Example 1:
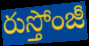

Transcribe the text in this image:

రుస్తోంజీ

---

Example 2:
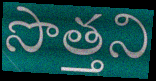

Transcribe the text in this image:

సొత్తని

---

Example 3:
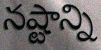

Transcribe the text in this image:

నష్టాన్ని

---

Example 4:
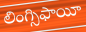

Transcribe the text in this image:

లింగ్సిఫాయీ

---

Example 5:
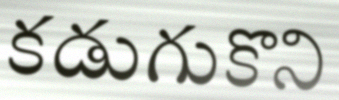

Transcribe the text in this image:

కడుగుకొని